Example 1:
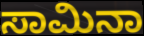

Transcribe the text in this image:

ಸಾಮಿನಾ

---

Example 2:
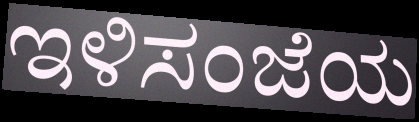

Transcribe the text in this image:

ಇಳಿಸಂಜೆಯ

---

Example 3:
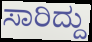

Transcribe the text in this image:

ಸಾರಿದ್ದು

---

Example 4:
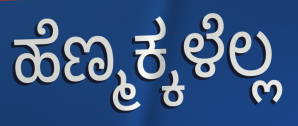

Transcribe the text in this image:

ಹೆಣ್ಮಕ್ಕಳೆಲ್ಲ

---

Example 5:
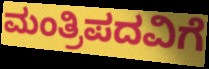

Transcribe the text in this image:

ಮಂತ್ರಿಪದವಿಗೆ